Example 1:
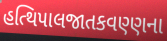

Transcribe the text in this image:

હત્થિપાલજાતકવણ્ણના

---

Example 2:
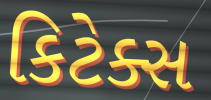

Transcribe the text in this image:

કિટેક્સ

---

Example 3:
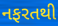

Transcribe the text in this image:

નફરતથી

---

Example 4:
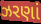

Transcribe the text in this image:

ઝરણાં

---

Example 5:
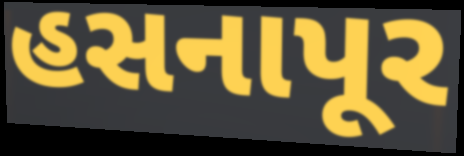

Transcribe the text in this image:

હસનાપૂર